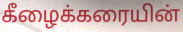
கீழைக்கரையின்